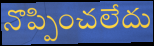
నొప్పించలేదు